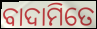
ବାଦାମିତେ